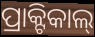
ପ୍ରାକ୍ଟିକାଲ୍